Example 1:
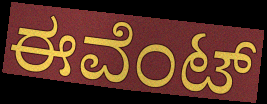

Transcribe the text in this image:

ಈವೆಂಟ್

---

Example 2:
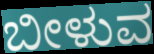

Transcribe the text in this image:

ಬೀಳುವ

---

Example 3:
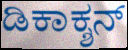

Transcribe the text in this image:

ಡಿಕಾಕ್ಶನ್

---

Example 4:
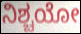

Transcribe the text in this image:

ನಿಶ್ಚಯೋ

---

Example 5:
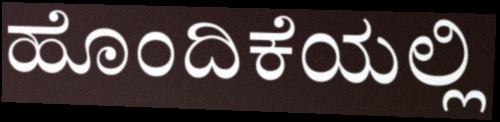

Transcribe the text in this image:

ಹೊಂದಿಕೆಯಲ್ಲಿ